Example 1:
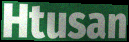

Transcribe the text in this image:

Htusan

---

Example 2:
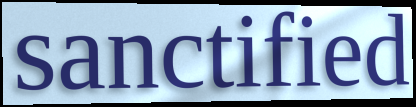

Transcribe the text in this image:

sanctified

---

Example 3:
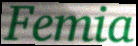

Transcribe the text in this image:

Femia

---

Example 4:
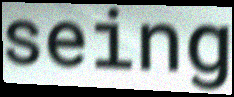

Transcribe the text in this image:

seing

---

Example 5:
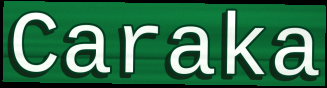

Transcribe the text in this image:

Caraka